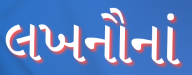
લખનૌનાં